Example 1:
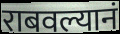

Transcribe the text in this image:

राबवल्यानं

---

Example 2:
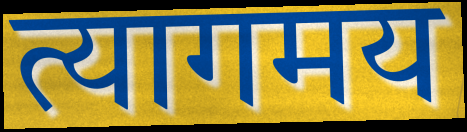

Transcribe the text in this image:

त्यागमय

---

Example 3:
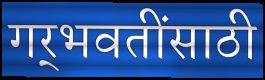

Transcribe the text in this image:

गर्भवतींसाठी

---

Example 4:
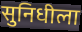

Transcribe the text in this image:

सुनिधीला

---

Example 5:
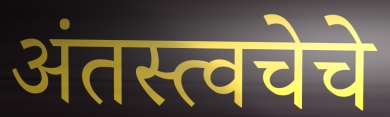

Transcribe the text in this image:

अंतस्त्वचेचे